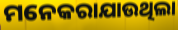
ମନେକରାଯାଉଥିଲା